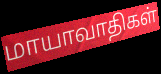
மாயாவாதிகள்